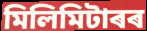
মিলিমিটাৰৰ